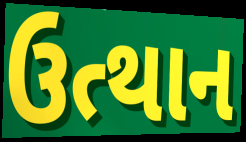
ઉત્થાન